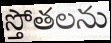
స్తోతలను